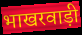
भाखरवाड़ी